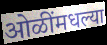
ओळींमधल्या